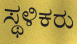
ಸ್ಥಳಿಕರು